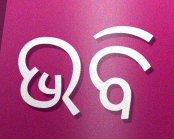
ଭବି